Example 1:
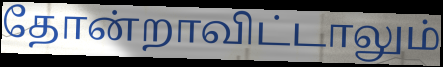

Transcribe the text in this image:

தோன்றாவிட்டாலும்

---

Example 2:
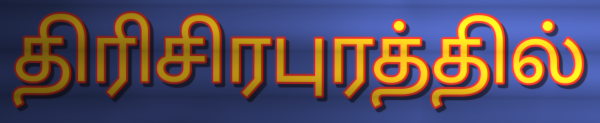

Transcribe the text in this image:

திரிசிரபுரத்தில்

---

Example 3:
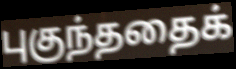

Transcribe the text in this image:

புகுந்ததைக்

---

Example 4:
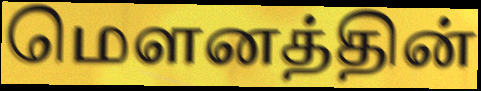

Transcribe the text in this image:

மௌனத்தின்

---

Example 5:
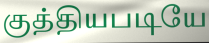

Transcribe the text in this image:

குத்தியபடியே